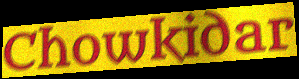
Chowkidar